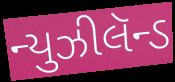
ન્યુઝીલૅન્ડ